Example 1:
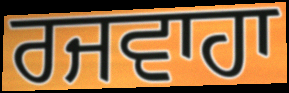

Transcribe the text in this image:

ਰਜਵਾਹਾ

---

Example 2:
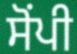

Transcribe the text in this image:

ਸੋੰਪੀ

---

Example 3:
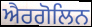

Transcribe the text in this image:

ਐਰਗੋਲਿਨ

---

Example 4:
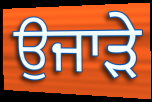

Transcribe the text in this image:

ਉਜਾੜੇ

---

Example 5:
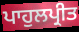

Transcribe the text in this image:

ਪਾਹੁਲਪ੍ਰੀਤ